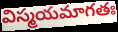
విస్మయమాగతః